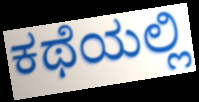
ಕಥೆಯಲ್ಲಿ